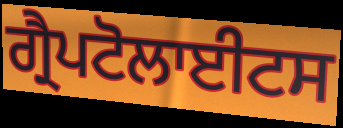
ਗ੍ਰੈਪਟੋਲਾਈਟਸ